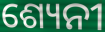
ଶ୍ୟେନୀ